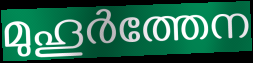
മുഹൂർത്തേന